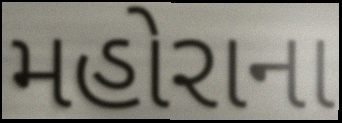
મહોરાના